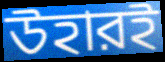
উহারই